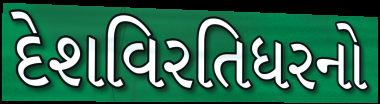
દેશવિરતિધરનો